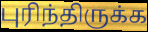
புரிந்திருக்க